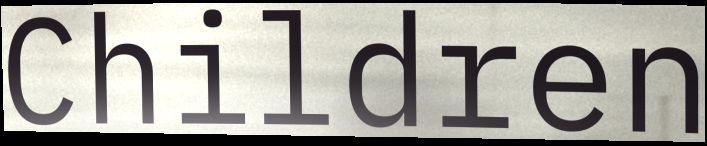
Children